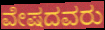
ವೇಷದವರು